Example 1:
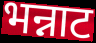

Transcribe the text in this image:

भन्नाट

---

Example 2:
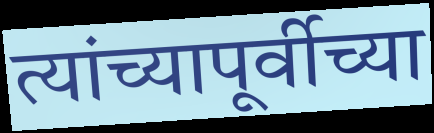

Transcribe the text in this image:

त्यांच्यापूर्वीच्या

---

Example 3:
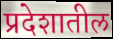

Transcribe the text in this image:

प्रदेशातील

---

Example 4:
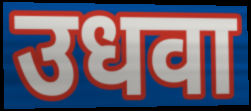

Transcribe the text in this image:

उधवा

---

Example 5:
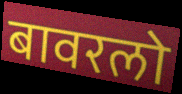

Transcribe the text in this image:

बावरलो